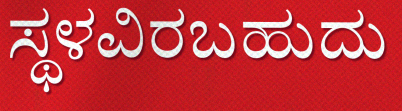
ಸ್ಥಳವಿರಬಹುದು